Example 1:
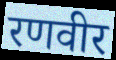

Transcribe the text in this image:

रणवीर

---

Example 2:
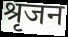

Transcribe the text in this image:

श्रृजन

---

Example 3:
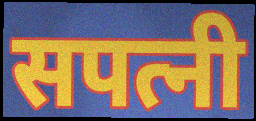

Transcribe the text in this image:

सपत्नी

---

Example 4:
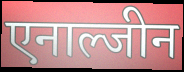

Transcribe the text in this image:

एनाल्जीन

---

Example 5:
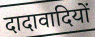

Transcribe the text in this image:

दादावादियों